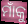
ମାଁକୁ